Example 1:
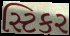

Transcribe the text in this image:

સ્ટિકર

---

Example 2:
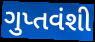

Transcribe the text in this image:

ગુપ્તવંશી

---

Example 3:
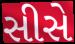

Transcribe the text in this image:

સીસે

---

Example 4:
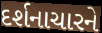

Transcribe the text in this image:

દર્શનાચારને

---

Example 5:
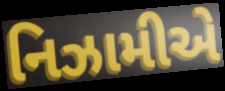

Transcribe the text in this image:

નિઝામીએ